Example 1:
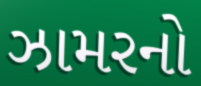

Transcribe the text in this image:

ઝામરનો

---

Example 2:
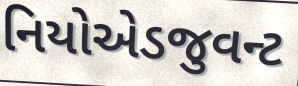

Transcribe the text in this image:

નિયોએડજુવન્ટ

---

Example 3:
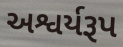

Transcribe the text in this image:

અશ્વર્યરૂપ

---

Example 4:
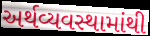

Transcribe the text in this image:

અર્થવ્યવસ્થામાંથી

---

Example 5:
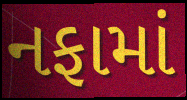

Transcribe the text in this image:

નફામાં